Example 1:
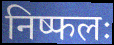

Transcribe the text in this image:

निष्फलः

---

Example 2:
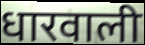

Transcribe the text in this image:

धारवाली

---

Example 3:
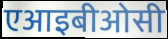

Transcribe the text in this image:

एआइबीओसी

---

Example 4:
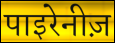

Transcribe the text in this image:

पाइरेनीज़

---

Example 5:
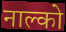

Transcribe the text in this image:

नाल्को